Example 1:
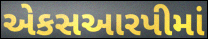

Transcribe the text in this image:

એકસઆરપીમાં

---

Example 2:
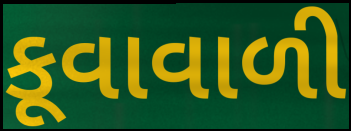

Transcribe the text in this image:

કૂવાવાળી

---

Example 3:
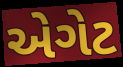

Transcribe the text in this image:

એગેટ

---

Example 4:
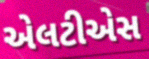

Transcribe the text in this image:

એલટીએસ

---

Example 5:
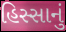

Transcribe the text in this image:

હિસ્સાનું